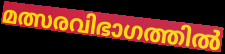
മത്സരവിഭാഗത്തിൽ